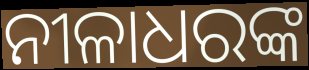
ନୀଳାଧରଙ୍କ